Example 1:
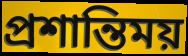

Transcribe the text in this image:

প্রশান্তিময়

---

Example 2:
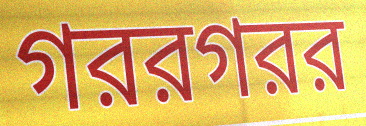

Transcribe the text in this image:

গররগরর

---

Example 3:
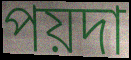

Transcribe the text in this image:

পয়দা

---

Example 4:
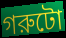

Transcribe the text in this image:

গরুটো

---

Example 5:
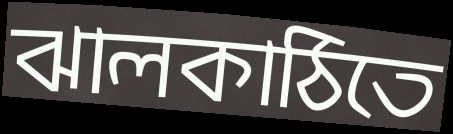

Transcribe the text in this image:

ঝালকাঠিতে